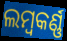
ଲମ୍ୱକର୍ଣ୍ଣ